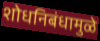
शोधनिबंधामुळे